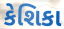
કેશિકા